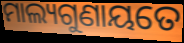
ମାଲ୍ୟଗୁଣାୟତେ